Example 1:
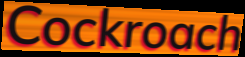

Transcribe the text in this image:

Cockroach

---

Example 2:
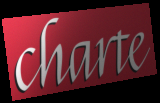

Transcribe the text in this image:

charte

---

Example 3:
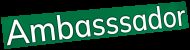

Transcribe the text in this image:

Ambasssador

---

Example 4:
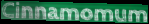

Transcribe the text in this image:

Cinnamomum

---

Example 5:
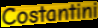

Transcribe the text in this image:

Costantini